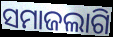
ସମାଜଲାଗି